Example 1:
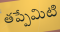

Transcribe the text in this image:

తప్పేమిటి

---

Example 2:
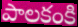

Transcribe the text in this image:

పాలకంకి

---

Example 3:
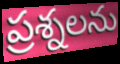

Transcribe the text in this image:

ప్రశ్నలను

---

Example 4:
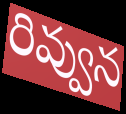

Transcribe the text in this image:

రివ్వున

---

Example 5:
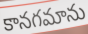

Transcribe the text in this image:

కానగమాను